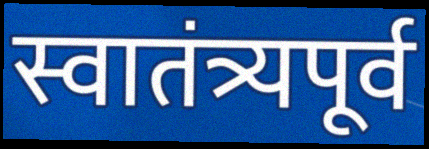
स्वातंत्र्यपूर्व